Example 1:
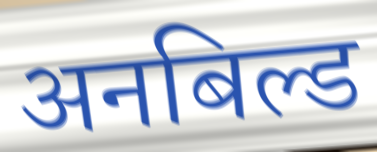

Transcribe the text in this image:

अनबिल्ड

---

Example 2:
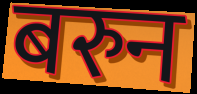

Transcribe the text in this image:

बरुन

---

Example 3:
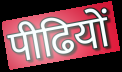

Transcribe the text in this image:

पीढियों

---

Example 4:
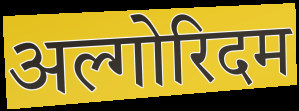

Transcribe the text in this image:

अल्गोरिदम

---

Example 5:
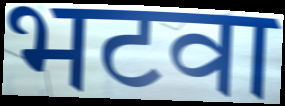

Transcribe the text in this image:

भटवा